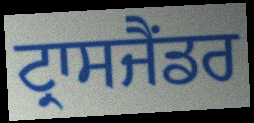
ਟ੍ਰਾਸਜੈਂਡਰ